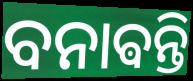
ବନାଵନ୍ତି